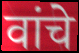
वांचे